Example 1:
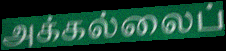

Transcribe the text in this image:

அக்கல்லைப்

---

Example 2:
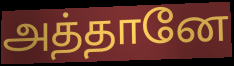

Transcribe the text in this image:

அத்தானே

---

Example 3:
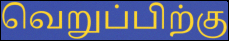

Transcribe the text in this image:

வெறுப்பிற்கு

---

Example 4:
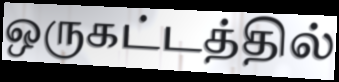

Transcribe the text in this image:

ஒருகட்டத்தில்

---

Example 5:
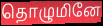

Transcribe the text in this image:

தொழுமினே